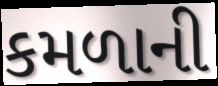
કમળાની